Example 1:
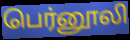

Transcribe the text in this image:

பெர்னூலி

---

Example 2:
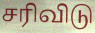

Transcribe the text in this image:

சரிவிடு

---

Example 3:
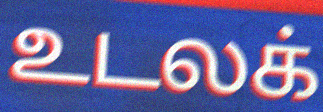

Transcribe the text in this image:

உடலக்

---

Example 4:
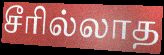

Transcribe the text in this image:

சீரில்லாத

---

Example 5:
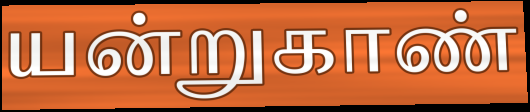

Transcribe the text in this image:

யன்றுகாண்